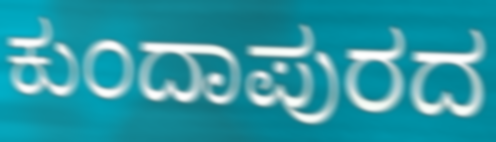
ಕುಂದಾಪುರದ